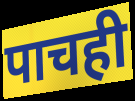
पाचही